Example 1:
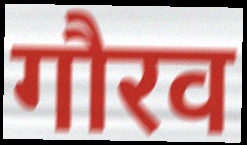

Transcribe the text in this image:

गौरव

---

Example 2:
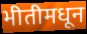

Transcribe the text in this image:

भीतीमधून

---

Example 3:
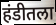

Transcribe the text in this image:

हंडीतला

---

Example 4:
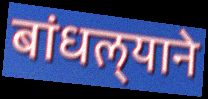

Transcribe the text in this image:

बांधल्याने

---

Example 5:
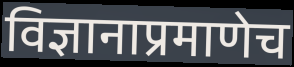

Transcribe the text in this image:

विज्ञानाप्रमाणेच